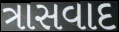
ત્રાસવાદ